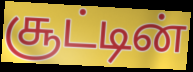
சூட்டின்